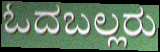
ಓದಬಲ್ಲರು